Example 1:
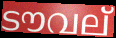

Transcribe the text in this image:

ടൗവല്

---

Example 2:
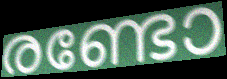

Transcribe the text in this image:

രണ്ടോ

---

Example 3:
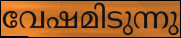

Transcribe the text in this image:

വേഷമിടുന്നു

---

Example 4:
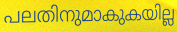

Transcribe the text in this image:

പലതിനുമാകുകയില്ല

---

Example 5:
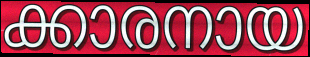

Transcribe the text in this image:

ക്കാരനായ